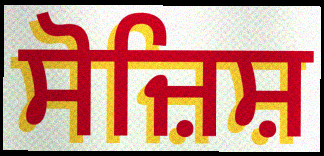
ਸੋਜ਼ਿਸ਼